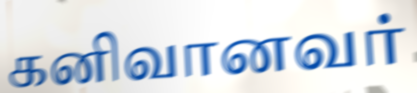
கனிவானவர்